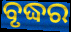
ବୃଦ୍ଧର